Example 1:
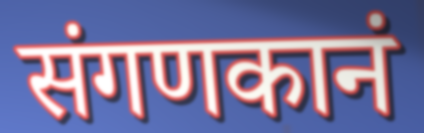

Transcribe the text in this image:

संगणकानं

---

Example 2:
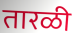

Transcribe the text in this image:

तारळी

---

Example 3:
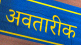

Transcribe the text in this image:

अवतारीक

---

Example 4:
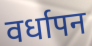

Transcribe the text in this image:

वर्धापन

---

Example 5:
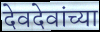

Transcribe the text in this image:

देवदेवांच्या